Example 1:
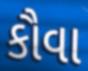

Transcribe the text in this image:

કૌવા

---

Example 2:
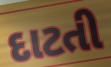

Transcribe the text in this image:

દાટતી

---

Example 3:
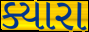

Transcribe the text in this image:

ક્યારા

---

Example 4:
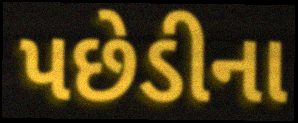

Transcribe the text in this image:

પછેડીના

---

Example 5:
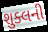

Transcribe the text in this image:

શુક્લની